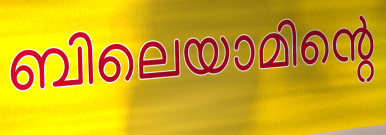
ബിലെയാമിന്റെ